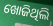
ଖୋଜିଥିଲି